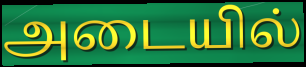
அடையில்